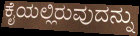
ಕೈಯಲ್ಲಿರುವುದನ್ನು